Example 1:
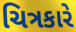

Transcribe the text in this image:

ચિત્રકારે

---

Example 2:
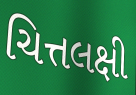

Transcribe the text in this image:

ચિત્તલક્ષી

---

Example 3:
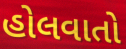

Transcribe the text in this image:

હોલવાતો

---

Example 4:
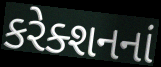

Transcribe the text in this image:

કરેક્શનનાં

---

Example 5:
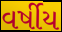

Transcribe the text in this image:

વર્ષીય